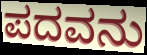
ಪದವನು